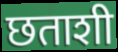
छताशी